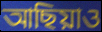
আছিয়াও